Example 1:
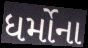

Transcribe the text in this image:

ધર્મોના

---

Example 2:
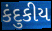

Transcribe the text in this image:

કંદુકીય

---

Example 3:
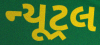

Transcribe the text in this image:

ન્યૂટ્રલ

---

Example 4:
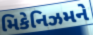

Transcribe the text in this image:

મિકેનિઝમને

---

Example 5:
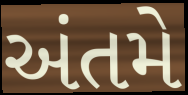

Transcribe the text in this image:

અંતમે